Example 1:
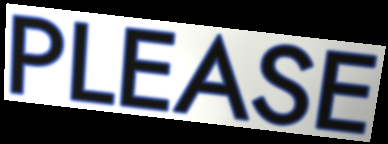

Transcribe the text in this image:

PLEASE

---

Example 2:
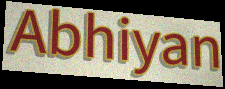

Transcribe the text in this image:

Abhiyan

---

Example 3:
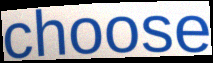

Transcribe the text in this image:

choose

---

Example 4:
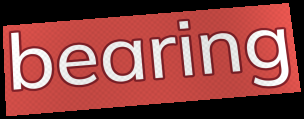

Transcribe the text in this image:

bearing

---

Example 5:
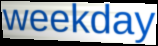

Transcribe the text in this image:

weekday